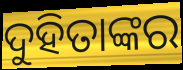
ଦୁହିତାଙ୍କର